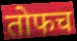
तोफच